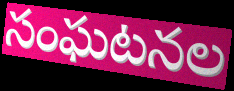
సంఘటనల